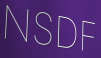
NSDF